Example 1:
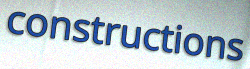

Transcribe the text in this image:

constructions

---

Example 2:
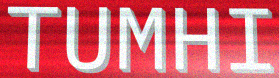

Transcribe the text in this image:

TUMHI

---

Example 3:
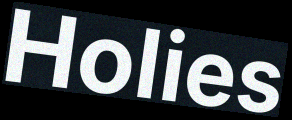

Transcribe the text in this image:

Holies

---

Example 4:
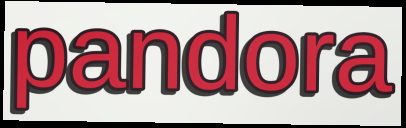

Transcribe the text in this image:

pandora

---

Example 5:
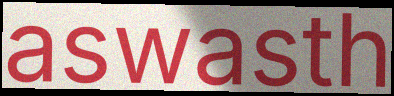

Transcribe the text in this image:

aswasth